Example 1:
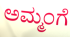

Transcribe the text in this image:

ಅಮ್ಮಂಗೆ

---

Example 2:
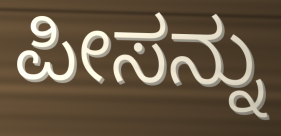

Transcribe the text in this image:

ಪೀಸನ್ನು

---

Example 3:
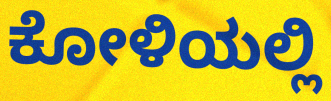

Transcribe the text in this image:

ಕೋಳಿಯಲ್ಲಿ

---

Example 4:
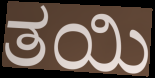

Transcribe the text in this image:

ತಯಿ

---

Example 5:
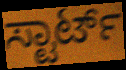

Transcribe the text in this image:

ಸ್ಟಾರ್ಟ್